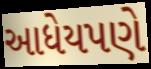
આધેયપણે